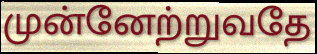
முன்னேற்றுவதே